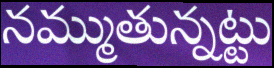
నమ్ముతున్నట్టు